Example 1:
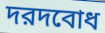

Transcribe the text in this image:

দরদবোধ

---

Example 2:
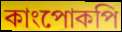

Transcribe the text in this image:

কাংপোকপি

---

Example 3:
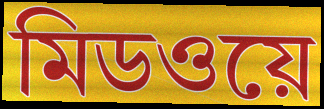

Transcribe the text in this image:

মিডওয়ে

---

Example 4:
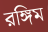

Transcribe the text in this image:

রঙ্গিম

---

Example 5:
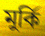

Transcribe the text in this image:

মুর্কি